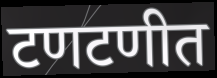
टणटणीत